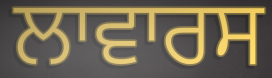
ਲਾਵਾਰਸ